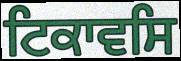
ਟਿਕਾਵਸਿ